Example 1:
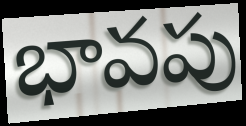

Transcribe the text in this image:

భావపు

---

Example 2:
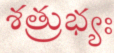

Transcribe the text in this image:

శత్రుభ్యః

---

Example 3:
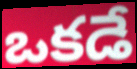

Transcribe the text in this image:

ఒకడే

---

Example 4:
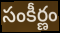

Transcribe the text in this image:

సంకీర్ణం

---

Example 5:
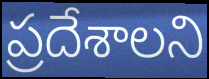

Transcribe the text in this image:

ప్రదేశాలని